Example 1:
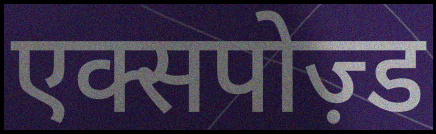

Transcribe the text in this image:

एक्सपोज़्ड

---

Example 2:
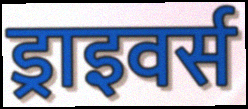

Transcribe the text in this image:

ड्राइवर्स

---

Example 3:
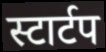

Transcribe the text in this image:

स्टार्टप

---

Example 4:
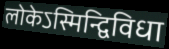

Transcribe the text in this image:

लोकेऽस्मिन्द्विविधा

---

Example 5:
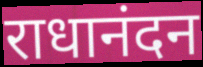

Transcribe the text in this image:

राधानंदन